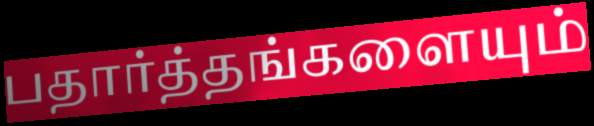
பதார்த்தங்களையும்